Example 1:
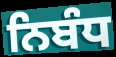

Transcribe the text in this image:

ਨਿਬੰਧ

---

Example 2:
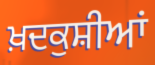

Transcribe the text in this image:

ਖ਼ਦਕੁਸ਼ੀਆਂ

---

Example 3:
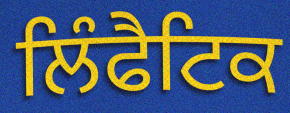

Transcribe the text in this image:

ਲਿੰਫੈਟਿਕ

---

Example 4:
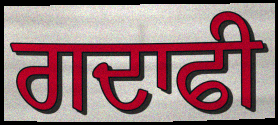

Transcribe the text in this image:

ਗਦਾਫੀ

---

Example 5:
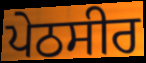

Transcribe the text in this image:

ਪੇਠਸੀਰ